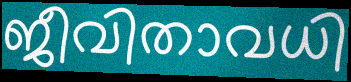
ജീവിതാവധി